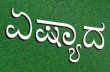
ಏಷ್ಯಾದ